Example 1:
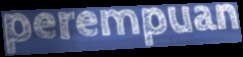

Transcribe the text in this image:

perempuan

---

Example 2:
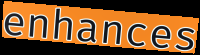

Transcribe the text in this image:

enhances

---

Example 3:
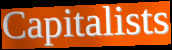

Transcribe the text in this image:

Capitalists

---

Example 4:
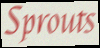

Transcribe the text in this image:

Sprouts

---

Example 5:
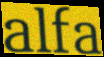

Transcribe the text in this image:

alfa